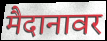
मैदानावर